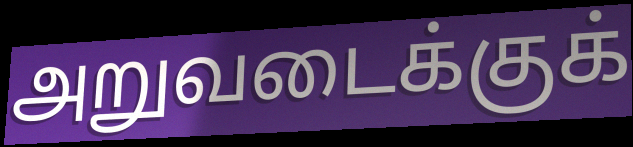
அறுவடைக்குக்